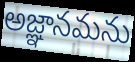
అజ్ఞానమను